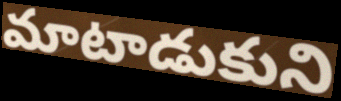
మాటాడుకుని